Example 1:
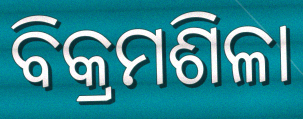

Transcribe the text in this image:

ବିକ୍ରମଶିଳା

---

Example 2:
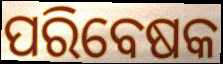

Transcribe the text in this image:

ପରିବେଷକ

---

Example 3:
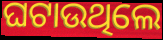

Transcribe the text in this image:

ଘଟାଉଥିଲେ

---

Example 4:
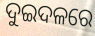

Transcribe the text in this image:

ଦୁଇଦଳରେ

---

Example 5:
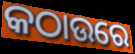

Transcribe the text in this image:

କଠାଉରେ